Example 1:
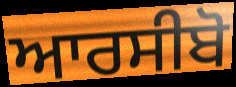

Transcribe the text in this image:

ਆਰਸੀਬੋ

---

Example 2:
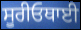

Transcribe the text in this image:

ਸੂਰੀਓਥਾਈ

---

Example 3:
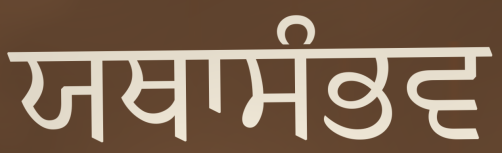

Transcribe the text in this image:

ਯਥਾਸੰਭਵ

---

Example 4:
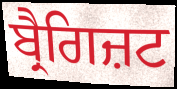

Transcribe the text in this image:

ਬ੍ਰੈਗਿਜ਼ਟ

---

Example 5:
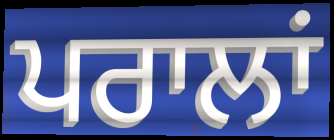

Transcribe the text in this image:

ਪਰਾਲਾਂ